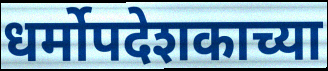
धर्मोपदेशकाच्या